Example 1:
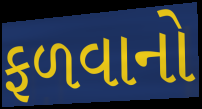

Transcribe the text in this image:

ફળવાનો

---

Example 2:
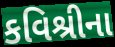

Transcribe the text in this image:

કવિશ્રીના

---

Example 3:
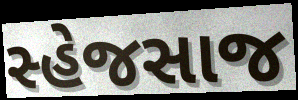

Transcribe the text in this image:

સ્હેજસાજ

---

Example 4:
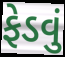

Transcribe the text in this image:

ફેડવું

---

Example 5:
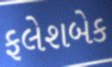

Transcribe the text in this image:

ફલેશબેક